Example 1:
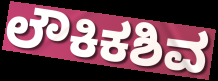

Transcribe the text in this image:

ಲೌಕಿಕಶಿವ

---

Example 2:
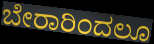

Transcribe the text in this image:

ಬೇರಾರಿಂದಲೂ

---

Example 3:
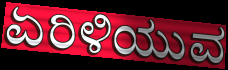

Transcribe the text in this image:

ಏರಿಳಿಯುವ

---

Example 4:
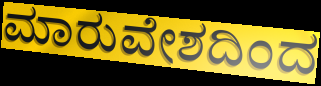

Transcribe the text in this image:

ಮಾರುವೇಶದಿಂದ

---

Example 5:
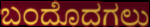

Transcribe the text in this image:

ಬಂದೊದಗಲು